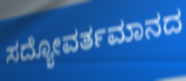
ಸದ್ಯೋವರ್ತಮಾನದ